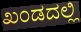
ಖಂಡದಲ್ಲಿ